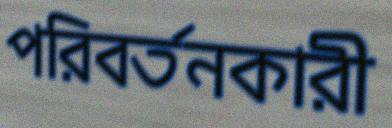
পরিবর্তনকারী